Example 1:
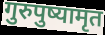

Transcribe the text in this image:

गुरुपुष्यामृत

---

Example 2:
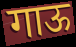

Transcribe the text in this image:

गाऊ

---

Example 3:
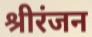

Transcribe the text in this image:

श्रीरंजन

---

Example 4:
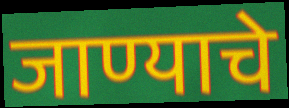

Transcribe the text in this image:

जाण्याचे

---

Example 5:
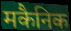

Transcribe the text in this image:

मकैनिक